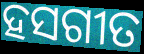
ହସଗୀତ